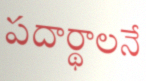
పదార్థాలనే